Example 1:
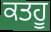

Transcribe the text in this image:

ਕਤਹੂ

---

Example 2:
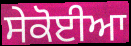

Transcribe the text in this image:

ਸੇਕੋਈਆ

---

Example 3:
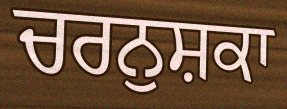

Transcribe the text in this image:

ਚਰਨੁਸ਼ਕਾ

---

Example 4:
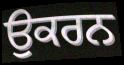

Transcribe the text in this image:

ਉਕਰਨ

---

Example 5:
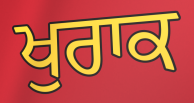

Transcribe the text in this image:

ਖੁਰਾਕ